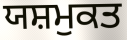
ਯਸ਼ਮੁਕਤ